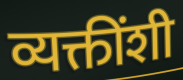
व्यक्तींशी